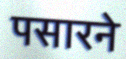
पसारने